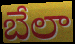
బేలా